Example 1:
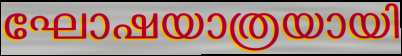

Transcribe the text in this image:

ഘോഷയാത്രയായി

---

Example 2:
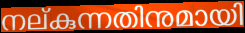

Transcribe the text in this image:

നല്‌കുന്നതിനുമായി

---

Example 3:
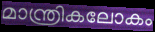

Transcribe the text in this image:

മാന്ത്രികലോകം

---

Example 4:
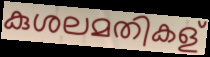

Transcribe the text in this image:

കുശലമതികള്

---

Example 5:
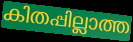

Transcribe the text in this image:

കിതപ്പില്ലാത്ത